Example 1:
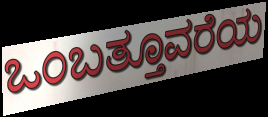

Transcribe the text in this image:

ಒಂಬತ್ತೂವರೆಯ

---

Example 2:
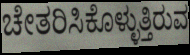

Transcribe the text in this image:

ಚೇತರಿಸಿಕೊಳ್ಳುತ್ತಿರುವ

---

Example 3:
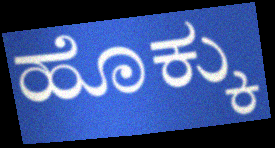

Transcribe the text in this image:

ಹೊಕ್ಕು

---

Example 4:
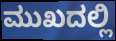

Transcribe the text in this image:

ಮುಖದಲ್ಲಿ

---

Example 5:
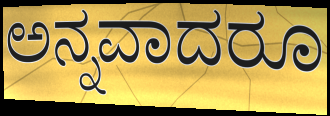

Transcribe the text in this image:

ಅನ್ನವಾದರೂ